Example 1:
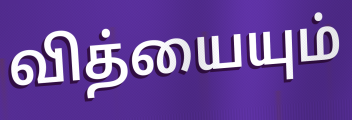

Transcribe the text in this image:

வித்யையும்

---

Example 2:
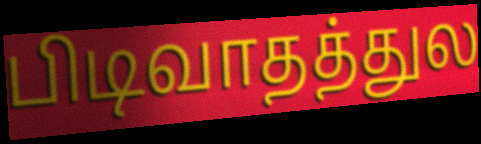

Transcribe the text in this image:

பிடிவாதத்துல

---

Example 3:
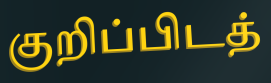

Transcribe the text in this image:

குறிப்பிடத்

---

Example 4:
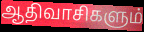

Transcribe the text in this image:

ஆதிவாசிகளும்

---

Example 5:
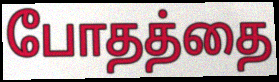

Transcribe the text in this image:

போதத்தை